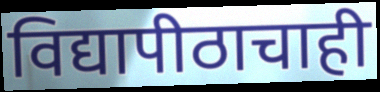
विद्यापीठाचाही